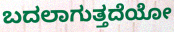
ಬದಲಾಗುತ್ತದೆಯೋ